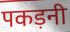
पकड़नी